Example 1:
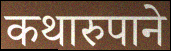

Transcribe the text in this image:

कथारुपाने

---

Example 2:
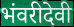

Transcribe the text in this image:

भंवरीदेवी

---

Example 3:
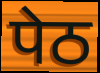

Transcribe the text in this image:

पेठ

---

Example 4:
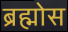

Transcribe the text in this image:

ब्रह्मोस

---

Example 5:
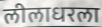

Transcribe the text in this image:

लीलाधरला